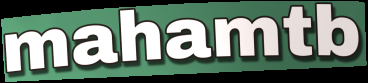
mahamtb